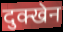
दुक्खेन